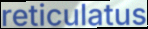
reticulatus